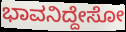
ಭಾವನಿದ್ದೇಸೋ